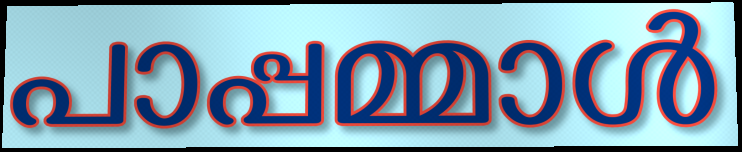
പാപ്പമ്മാൾ